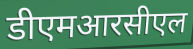
डीएमआरसीएल